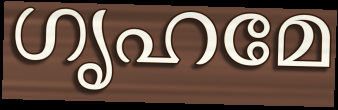
ഗൃഹമേ